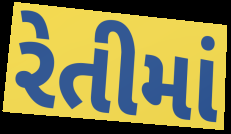
રેતીમાં